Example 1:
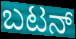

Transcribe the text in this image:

ಬಟನ್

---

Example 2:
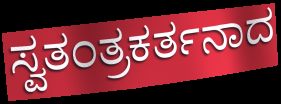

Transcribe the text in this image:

ಸ್ವತಂತ್ರಕರ್ತನಾದ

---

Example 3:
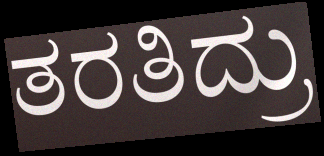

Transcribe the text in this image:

ತರತಿದ್ರು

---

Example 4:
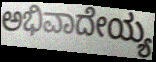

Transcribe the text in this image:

ಅಭಿವಾದೇಯ್ಯ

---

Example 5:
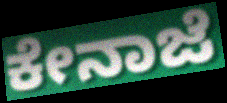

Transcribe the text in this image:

ಕೇನಾಜೆ